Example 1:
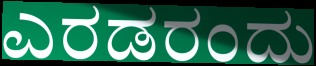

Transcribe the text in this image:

ಎರಡರಂದು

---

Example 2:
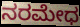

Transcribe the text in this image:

ನರಮೇಧ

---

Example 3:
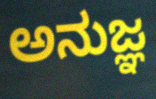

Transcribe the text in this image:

ಅನುಜ್ಞ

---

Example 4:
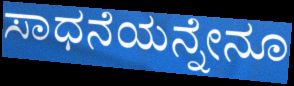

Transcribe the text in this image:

ಸಾಧನೆಯನ್ನೇನೂ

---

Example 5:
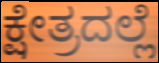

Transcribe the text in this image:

ಕ್ಷೇತ್ರದಲ್ಲೆ